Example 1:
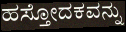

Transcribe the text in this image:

ಹಸ್ತೋದಕವನ್ನು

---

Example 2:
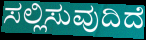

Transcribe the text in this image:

ಸಲ್ಲಿಸುವುದಿದೆ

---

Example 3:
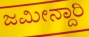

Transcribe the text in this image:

ಜಮೀನ್ದಾರಿ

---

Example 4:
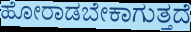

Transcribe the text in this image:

ಹೋರಾಡಬೇಕಾಗುತ್ತದೆ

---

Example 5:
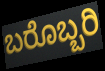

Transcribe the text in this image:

ಬರೊಬ್ಬರಿ